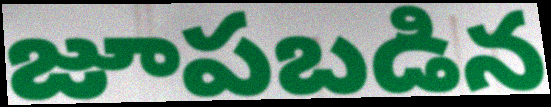
జూపబడిన